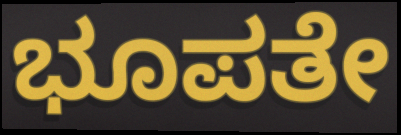
ಭೂಪತೇ